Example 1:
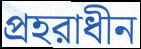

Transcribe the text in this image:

প্রহরাধীন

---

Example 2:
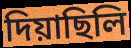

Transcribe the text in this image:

দিয়াছিলি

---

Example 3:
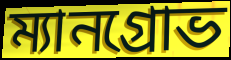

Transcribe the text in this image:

ম্যানগ্রোভ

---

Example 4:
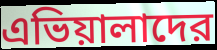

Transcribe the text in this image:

এভিয়ালাদের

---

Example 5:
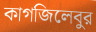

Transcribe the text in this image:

কাগজিলেবুর